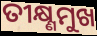
ତୀକ୍ଷ୍ଣମୁଖ